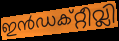
ഇൻഡക്റ്റീവ്ലി